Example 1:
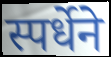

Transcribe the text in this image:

स्पर्धेने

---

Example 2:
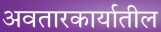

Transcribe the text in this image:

अवतारकार्यातील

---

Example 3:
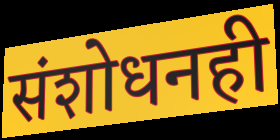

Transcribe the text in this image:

संशोधनही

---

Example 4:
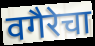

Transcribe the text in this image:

वगैरेचा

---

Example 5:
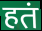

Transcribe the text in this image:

हतं